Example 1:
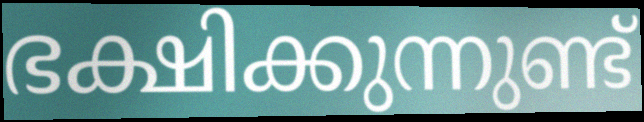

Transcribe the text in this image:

ഭക്ഷിക്കുന്നുണ്ട്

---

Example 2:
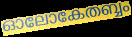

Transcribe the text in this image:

ഓലോകേതബ്ബം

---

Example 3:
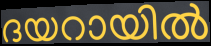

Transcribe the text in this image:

ദയറായിൽ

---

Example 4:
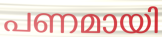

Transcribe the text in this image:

പണമായി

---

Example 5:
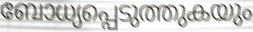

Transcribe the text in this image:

ബോധ്യപ്പെടുത്തുകയും